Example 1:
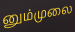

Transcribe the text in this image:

னும்முலை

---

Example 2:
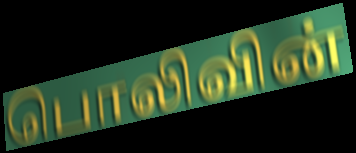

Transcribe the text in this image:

பொலிவின்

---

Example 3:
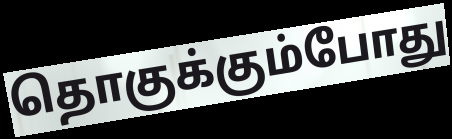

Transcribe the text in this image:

தொகுக்கும்போது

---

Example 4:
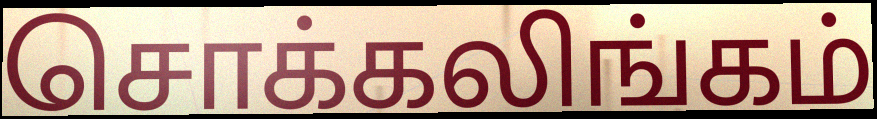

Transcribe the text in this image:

சொக்கலிங்கம்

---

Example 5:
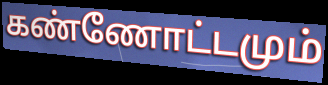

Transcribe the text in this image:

கண்ணோட்டமும்